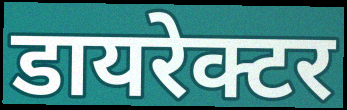
डायरेक्टर